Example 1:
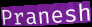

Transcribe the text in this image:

Pranesh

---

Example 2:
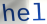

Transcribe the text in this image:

hel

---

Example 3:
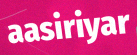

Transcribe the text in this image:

aasiriyar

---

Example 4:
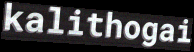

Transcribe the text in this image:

kalithogai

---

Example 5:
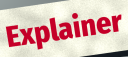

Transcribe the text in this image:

Explainer